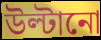
উল্টানো